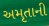
અમૃતાની